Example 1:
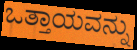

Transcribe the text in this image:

ಒತ್ತಾಯವನ್ನು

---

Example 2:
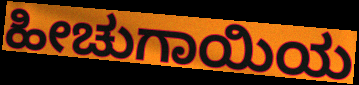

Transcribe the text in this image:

ಹೀಚುಗಾಯಿಯ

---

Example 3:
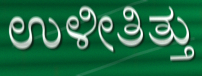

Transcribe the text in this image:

ಉಳೀತಿತ್ತು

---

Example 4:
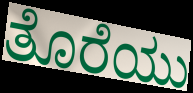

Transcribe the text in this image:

ತೊರೆಯು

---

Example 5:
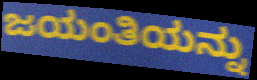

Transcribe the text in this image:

ಜಯಂತಿಯನ್ನು